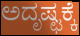
ಅದೃಷ್ಟಕ್ಕೆ